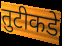
तुटीकडे